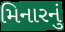
મિનારનું